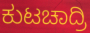
ಕುಟಚಾದ್ರಿ